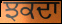
ਝਕਦਾ